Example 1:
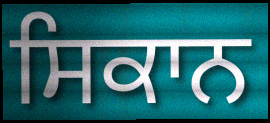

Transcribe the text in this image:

ਸਿਕਾਨ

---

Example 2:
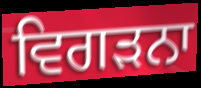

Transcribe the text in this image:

ਵਿਗੜਨਾ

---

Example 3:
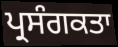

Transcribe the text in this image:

ਪ੍ਰਸੰਗਕਤਾ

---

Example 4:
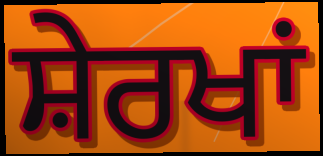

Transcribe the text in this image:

ਸ਼ੇਰਖਾਂ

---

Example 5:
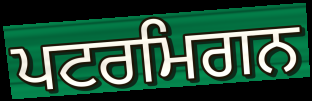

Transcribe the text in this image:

ਪਟਰਮਿਗਨ